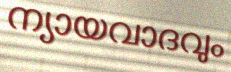
ന്യായവാദവും